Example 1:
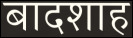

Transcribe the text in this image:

बादशाह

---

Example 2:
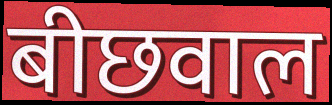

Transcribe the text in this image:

बीछवाल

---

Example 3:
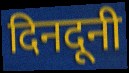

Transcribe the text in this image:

दिनदूनी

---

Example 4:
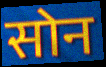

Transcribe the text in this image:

सोन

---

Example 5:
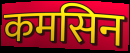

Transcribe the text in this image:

कमसिन